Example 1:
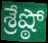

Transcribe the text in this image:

శ్రేష్ఠో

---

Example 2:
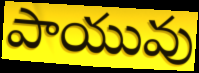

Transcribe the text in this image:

పాయువు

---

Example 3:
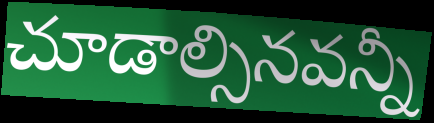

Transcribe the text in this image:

చూడాల్సినవన్నీ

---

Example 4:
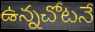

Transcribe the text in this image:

ఉన్నచోటనే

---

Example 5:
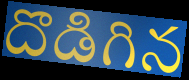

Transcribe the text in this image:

దొడిగిన